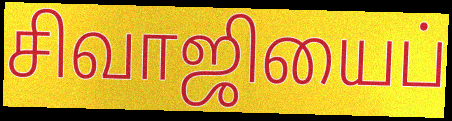
சிவாஜியைப்